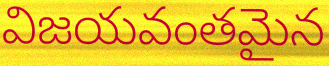
విజయవంతమైన